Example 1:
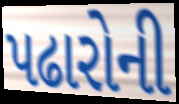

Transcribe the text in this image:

પઢારોની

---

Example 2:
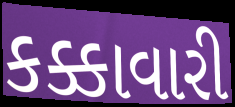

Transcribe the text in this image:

કક્કાવારી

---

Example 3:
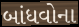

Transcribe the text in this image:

બાંધવોના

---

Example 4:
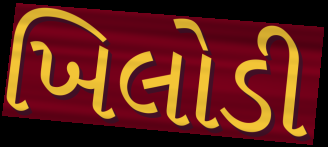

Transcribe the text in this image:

ખિલોડી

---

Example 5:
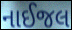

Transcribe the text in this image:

નાઈજલ